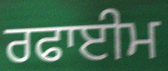
ਰਫਾਈਮ